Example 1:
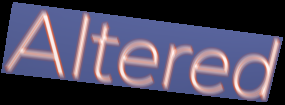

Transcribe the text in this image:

Altered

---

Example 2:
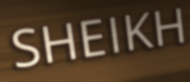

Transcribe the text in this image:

SHEIKH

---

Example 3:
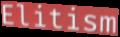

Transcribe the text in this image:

Elitism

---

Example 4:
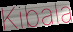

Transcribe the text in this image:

Kibala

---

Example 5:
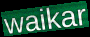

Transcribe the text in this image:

waikar